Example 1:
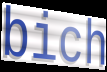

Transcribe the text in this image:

bich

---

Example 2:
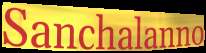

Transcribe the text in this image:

Sanchalanno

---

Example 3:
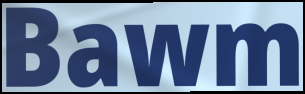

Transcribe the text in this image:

Bawm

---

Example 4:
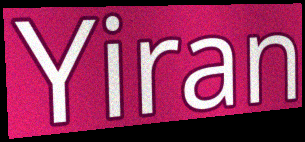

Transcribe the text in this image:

Yiran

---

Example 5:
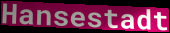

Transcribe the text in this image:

Hansestadt